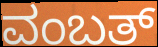
ವಂಬತ್